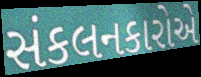
સંકલનકારોએ